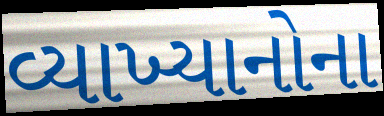
વ્યાખ્યાનોના